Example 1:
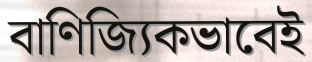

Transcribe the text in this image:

বাণিজ্যিকভাবেই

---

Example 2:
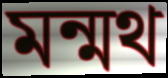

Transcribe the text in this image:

মন্মথ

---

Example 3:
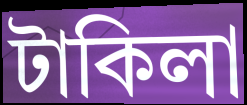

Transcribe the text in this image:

টাকিলা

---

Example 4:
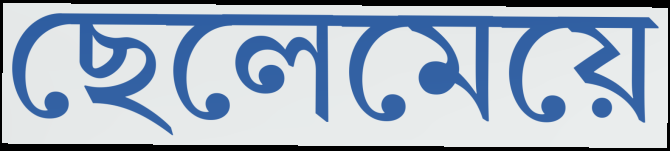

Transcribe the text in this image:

ছেলেমেয়ে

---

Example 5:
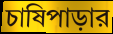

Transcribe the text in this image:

চাষিপাড়ার